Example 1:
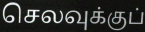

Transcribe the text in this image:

செலவுக்குப்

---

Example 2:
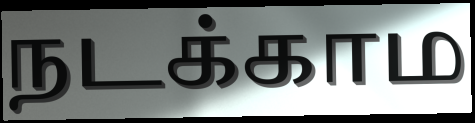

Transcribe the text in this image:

நடக்காம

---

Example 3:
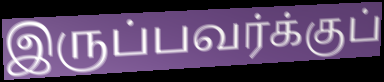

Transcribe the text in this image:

இருப்பவர்க்குப்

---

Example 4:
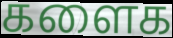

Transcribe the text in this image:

களைக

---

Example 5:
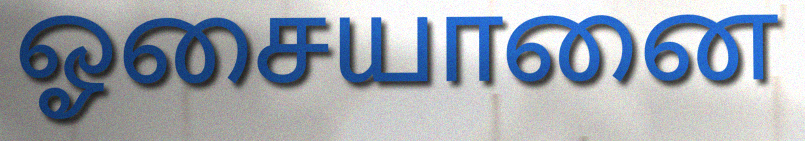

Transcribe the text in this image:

ஓசையானை